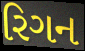
રિગન